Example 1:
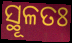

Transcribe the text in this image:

ସ୍ଥୂଳତଃ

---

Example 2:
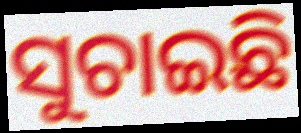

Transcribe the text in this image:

ସୁଚାଇଛି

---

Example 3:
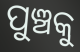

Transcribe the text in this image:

ପୁଞ୍ଚକୁ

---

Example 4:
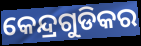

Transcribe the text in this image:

କେନ୍ଦ୍ରଗୁଡିକର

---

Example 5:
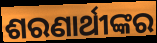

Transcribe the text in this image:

ଶରଣାର୍ଥୀଙ୍କର